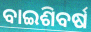
ବାଇଶିବର୍ଷ